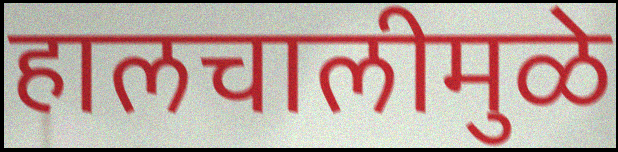
हालचालीमुळे